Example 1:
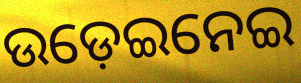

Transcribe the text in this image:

ଉଡ଼େଇନେଇ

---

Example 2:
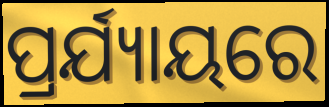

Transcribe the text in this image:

ପ୍ରର୍ଯ୍ୟାୟରେ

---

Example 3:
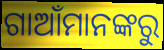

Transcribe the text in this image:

ଗାଆଁମାନଙ୍କରୁ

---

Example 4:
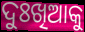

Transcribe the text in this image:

ଦୁଃଖିଆକୁ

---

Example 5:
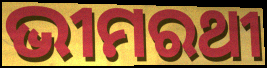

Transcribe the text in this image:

ଭୀମରଥୀ